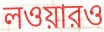
লওয়ারও